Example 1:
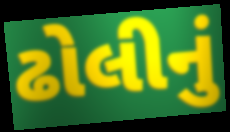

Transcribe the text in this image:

ઢોલીનું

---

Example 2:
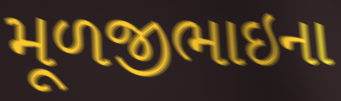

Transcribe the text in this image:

મૂળજીભાઇના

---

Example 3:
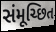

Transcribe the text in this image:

સંમૂચ્છિત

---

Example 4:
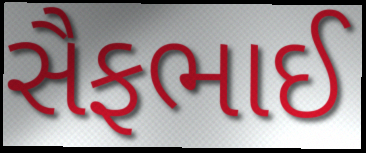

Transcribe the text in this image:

સૈફભાઈ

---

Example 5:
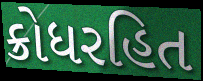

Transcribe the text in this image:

ક્રોધરહિત